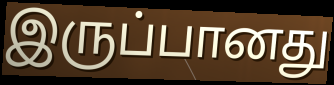
இருப்பானது